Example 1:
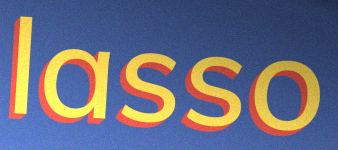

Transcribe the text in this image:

lasso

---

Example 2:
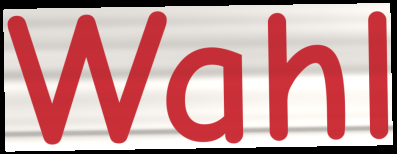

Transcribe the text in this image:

Wahl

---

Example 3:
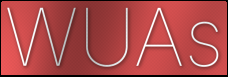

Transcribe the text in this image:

WUAs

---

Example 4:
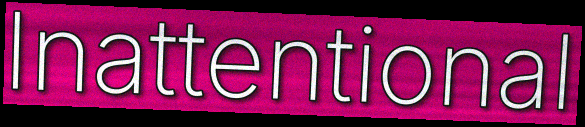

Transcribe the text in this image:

Inattentional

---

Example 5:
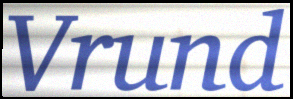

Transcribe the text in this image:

Vrund